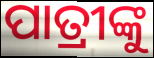
ପାତ୍ରୀଙ୍କୁ